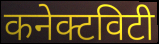
कनेक्टविटी